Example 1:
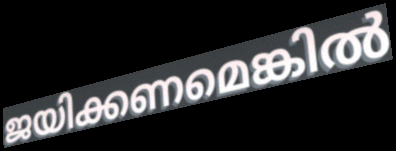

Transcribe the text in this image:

ജയിക്കണമെങ്കിൽ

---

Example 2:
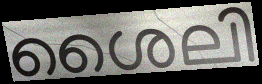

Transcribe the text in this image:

ശൈലി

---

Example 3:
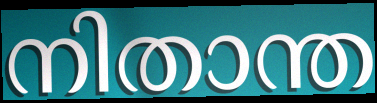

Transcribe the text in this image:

നിതാന്ത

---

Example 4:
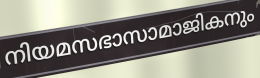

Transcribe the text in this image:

നിയമസഭാസാമാജികനും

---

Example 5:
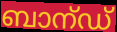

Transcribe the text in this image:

ബാന്ഡ്